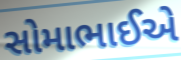
સોમાભાઈએ